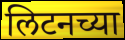
लिटनच्या